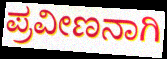
ಪ್ರವೀಣನಾಗಿ